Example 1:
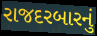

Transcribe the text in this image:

રાજદરબારનું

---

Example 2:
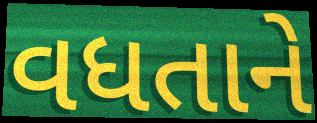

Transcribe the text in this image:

વધતાને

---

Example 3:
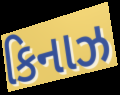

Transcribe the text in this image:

કિનાઝ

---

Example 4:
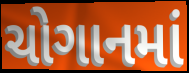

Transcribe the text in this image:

ચોગાનમાં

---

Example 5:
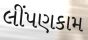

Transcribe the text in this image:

લીંપણકામ